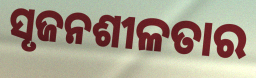
ସୃଜନଶୀଳତାର